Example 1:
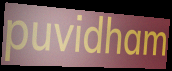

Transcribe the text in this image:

puvidham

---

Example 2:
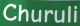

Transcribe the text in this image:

Churuli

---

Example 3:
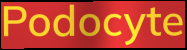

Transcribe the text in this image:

Podocyte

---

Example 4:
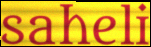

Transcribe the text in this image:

saheli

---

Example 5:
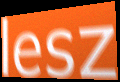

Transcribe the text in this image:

lesz